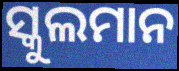
ସ୍କୁଲମାନ